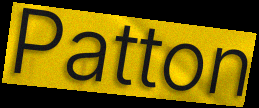
Patton